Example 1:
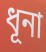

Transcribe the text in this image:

ধূনা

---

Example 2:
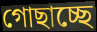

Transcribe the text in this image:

গোছাচ্ছে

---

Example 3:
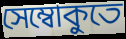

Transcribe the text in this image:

সেম্বোকুতে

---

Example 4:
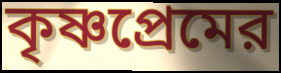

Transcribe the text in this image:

কৃষ্ণপ্রেমের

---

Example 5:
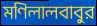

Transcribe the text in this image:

মণিলালবাবুর